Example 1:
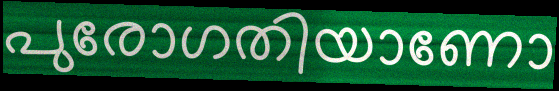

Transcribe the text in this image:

പുരോഗതിയാണോ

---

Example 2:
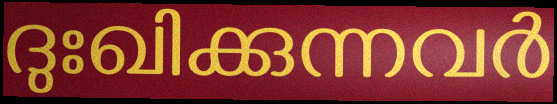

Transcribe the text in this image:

ദുഃഖിക്കുന്നവർ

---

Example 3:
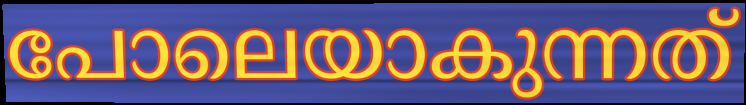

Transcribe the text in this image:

പോലെയാകുന്നത്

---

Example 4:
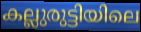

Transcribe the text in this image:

കല്ലുരുട്ടിയിലെ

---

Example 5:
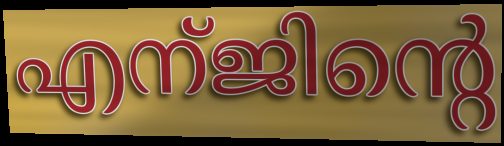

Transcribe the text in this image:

എന്ജിന്റെ